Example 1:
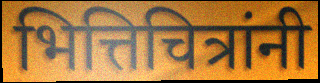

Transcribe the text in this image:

भित्तिचित्रांनी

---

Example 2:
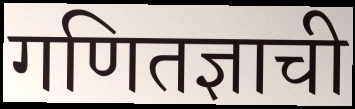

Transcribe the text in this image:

गणितज्ञाची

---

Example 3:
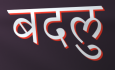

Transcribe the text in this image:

बदलु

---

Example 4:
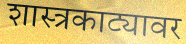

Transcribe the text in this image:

शास्त्रकाट्यावर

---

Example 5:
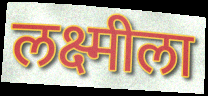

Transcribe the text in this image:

लक्ष्मीला